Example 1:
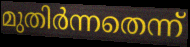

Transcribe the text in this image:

മുതിർന്നതെന്ന്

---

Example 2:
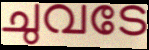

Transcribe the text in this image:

ചുവടേ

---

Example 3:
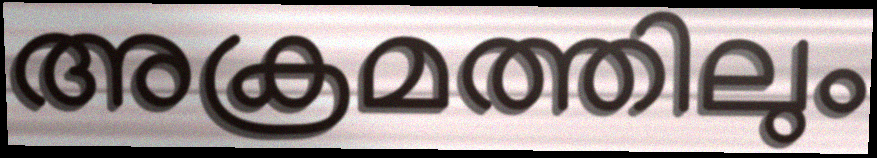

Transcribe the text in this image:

അക്രമത്തിലും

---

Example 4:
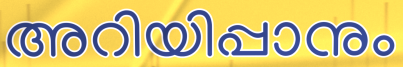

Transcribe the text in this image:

അറിയിപ്പാനും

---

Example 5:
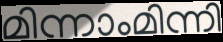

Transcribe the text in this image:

മിന്നാംമിന്നി